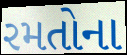
રમતોના